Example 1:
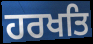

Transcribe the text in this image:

ਹਰਖਤਿ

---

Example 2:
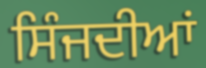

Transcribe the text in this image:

ਸਿੰਜਦੀਆਂ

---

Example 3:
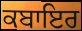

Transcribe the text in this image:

ਕਬਾਇਰ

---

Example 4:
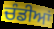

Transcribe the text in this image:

ਚੰਡੀਆਂ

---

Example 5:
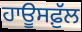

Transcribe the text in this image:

ਹਾਊਸਫ਼ੁੱਲ